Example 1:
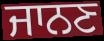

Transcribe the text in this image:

ਜਾਨਣ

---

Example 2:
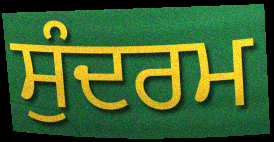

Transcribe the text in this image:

ਸੁੰਦਰਮ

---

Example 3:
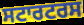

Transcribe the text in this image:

ਸਟਾਰਟਰਸ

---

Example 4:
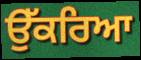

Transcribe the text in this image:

ਉੱਕਰਿਆ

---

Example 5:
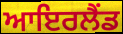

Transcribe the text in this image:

ਆਇਰਲੈੰਡ